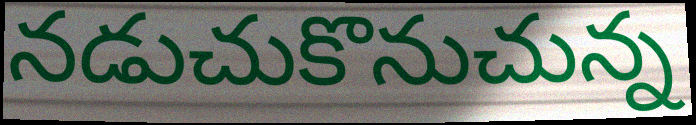
నడుచుకొనుచున్న